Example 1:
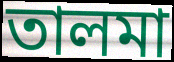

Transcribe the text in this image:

তালমা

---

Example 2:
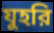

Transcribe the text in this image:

যুহরি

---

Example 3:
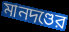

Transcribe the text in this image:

মানদণ্ডের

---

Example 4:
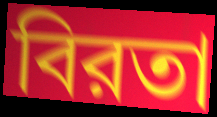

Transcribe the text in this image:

বিরতা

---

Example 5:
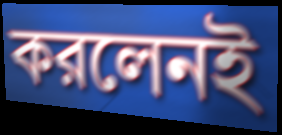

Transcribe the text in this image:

করলেনই